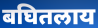
बघितलाय